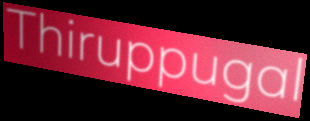
Thiruppugal